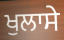
ਖੁਲਾਸੇ